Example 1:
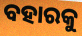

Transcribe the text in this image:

ବହାରକୁ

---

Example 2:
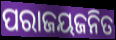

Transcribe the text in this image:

ପରାଜୟଜନିତ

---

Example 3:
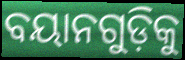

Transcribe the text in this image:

ବୟାନଗୁଡ଼ିକୁ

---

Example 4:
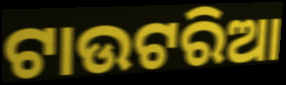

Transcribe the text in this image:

ଟାଉଟରିଆ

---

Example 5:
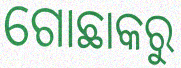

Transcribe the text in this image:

ଗୋଛାକରୁ